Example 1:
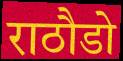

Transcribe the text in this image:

राठौडो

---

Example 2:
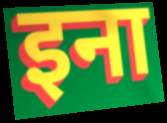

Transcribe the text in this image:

इना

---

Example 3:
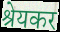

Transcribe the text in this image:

श्रेयकर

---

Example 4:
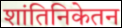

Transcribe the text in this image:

शांतिनिकेतन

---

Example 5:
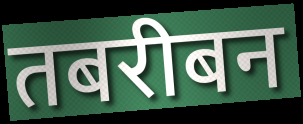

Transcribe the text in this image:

तबरीबन